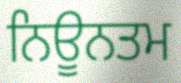
ਨਿਊਨਤਮ